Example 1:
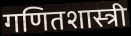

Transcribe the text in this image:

गणितशास्त्री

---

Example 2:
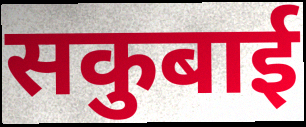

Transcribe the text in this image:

सकुबाई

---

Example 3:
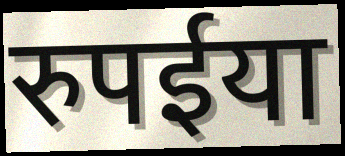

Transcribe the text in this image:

रुपईया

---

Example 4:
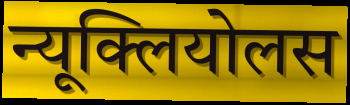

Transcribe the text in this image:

न्यूक्लियोलस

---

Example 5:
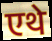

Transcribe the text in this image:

एथे